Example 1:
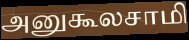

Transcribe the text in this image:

அனுகூலசாமி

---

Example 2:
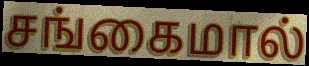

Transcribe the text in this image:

சங்கைமால்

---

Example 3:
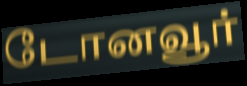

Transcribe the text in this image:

டோனவூர்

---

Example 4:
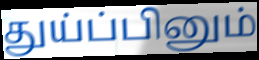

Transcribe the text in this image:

துய்ப்பினும்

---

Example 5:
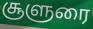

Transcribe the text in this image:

சூளுரை